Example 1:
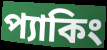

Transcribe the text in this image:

প্যাকিং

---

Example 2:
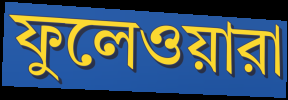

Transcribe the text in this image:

ফুলেওয়ারা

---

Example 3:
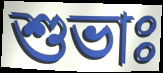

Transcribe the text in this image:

শুভাঃ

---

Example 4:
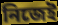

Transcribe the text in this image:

নিজেই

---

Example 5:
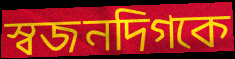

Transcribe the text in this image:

স্বজনদিগকে